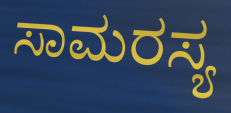
ಸಾಮರಸ್ಯ